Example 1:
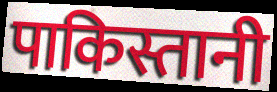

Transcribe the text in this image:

पाकिस्तानी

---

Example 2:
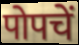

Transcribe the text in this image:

पोपचें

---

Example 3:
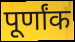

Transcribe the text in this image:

पूर्णांक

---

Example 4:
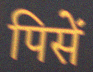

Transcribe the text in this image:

पिसें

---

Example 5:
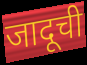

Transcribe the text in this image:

जादूची